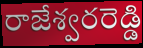
రాజేశ్వరరెడ్డి